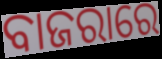
ବାଜରାରେ